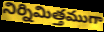
నిర్నిమిత్తముగా